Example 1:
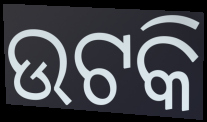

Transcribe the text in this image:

ଉଟକି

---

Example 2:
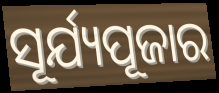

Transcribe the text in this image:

ସୂର୍ଯ୍ୟପୂଜାର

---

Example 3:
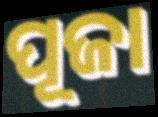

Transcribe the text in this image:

ପୂଜା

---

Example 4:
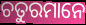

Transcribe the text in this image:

ଚତୁରମାନେ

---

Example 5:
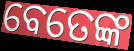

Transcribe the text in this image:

ବେତେଙ୍କ